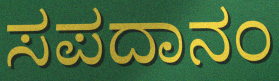
ಸಪದಾನಂ